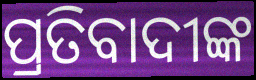
ପ୍ରତିବାଦୀଙ୍କ